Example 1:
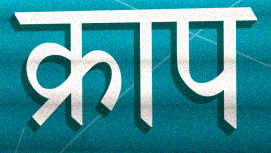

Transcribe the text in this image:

क्राप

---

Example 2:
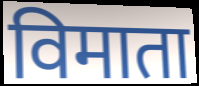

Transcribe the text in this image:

विमाता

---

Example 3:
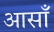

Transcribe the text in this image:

आसाँ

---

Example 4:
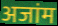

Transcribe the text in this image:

अजांम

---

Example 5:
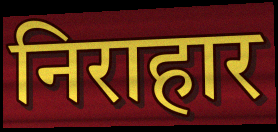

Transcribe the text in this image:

निराहार